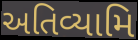
અતિવ્યામિ